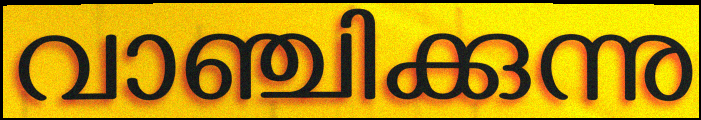
വാഞ്ചിക്കുന്നു